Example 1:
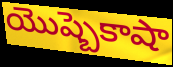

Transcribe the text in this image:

యొష్బెకాషా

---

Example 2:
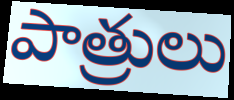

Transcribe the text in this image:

పాత్రులు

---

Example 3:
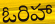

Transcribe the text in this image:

ఓరిహా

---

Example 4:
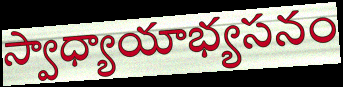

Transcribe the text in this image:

స్వాధ్యాయాభ్యసనం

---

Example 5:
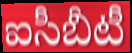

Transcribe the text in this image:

ఐసీబీటీ